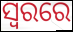
ସ୍ୱରରେ